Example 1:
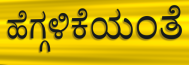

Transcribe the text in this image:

ಹೆಗ್ಗಳಿಕೆಯಂತೆ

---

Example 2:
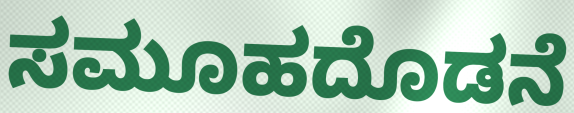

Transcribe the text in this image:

ಸಮೂಹದೊಡನೆ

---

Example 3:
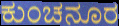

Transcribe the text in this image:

ಕುಂಚನೂರ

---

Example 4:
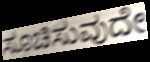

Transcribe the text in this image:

ಸೂಚಿಸುವುದೇ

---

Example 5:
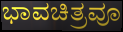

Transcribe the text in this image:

ಭಾವಚಿತ್ರವೂ